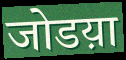
जोडय़ा